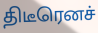
திடீரெனச்